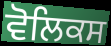
ਵੋਲਿਕਸ